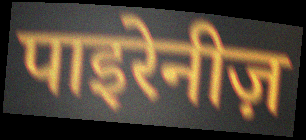
पाइरेनीज़